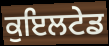
ਕੁਇਲਟੇਡ